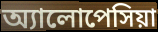
অ্যালোপেসিয়া